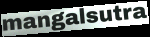
mangalsutra